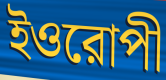
ইওরোপী